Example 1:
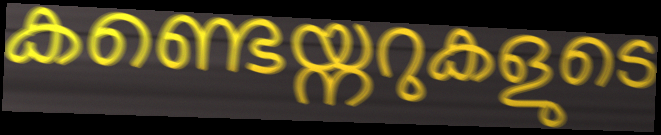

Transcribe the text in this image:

കണ്ടെയ്നറുകളുടെ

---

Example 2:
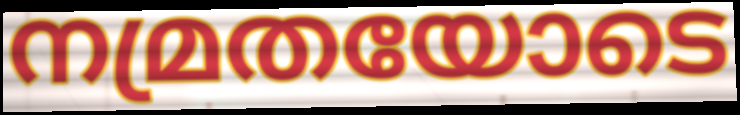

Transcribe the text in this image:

നമ്രതയോടെ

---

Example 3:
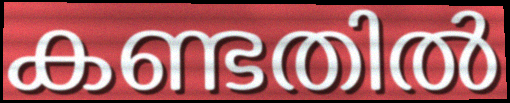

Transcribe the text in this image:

കണ്ടതിൽ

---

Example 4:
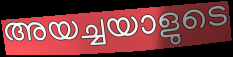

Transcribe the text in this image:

അയച്ചയാളുടെ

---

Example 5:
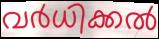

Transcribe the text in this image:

വർധിക്കൽ